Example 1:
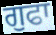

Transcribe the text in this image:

ਗੁਫਾ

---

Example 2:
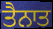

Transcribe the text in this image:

ਤੈਨਾਤ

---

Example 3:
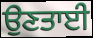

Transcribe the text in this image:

ਉਣਤਾਈ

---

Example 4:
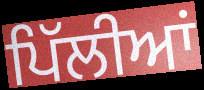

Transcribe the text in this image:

ਪਿੱਲੀਆਂ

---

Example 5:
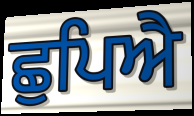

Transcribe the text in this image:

ਛੁਪਿਐ